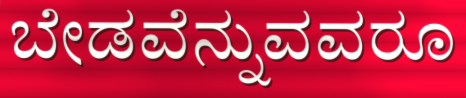
ಬೇಡವೆನ್ನುವವರೂ